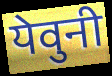
येवुनी